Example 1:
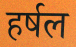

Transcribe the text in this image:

हर्षल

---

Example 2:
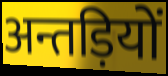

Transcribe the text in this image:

अन्तड़ियों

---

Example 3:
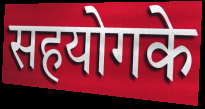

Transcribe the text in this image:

सहयोगके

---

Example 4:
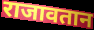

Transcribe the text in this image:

राजावतान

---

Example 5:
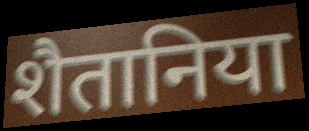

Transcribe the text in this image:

शैतानिया